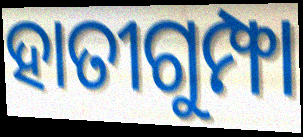
ହାତୀଗୁମ୍ଫା